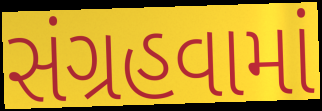
સંગ્રહવામાં